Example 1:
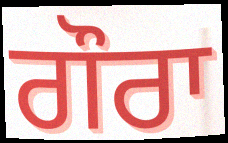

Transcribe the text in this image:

ਗੌਰਾ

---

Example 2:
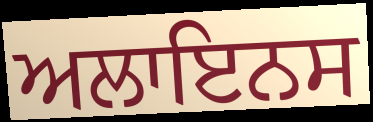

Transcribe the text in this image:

ਅਲਾਇਨਸ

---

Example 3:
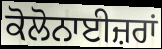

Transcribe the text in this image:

ਕੋਲੋਨਾਈਜ਼ਰਾਂ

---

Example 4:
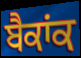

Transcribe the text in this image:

ਬੈਕਾਂਕ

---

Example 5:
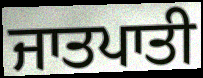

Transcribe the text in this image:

ਜਾਤਪਾਤੀ